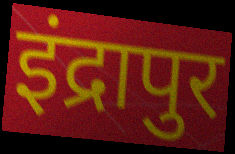
इंद्रापुर